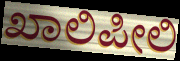
ಖಾಲಿಪೀಲಿ